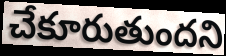
చేకూరుతుందని